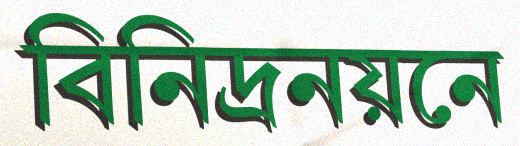
বিনিদ্রনয়নে